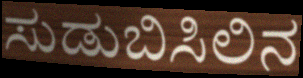
ಸುಡುಬಿಸಿಲಿನ